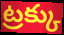
ట్రక్కు